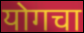
योगचा